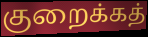
குறைக்கத்